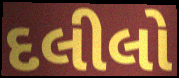
દલીલો